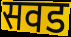
सवड